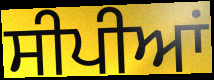
ਸੀਪੀਆਂ